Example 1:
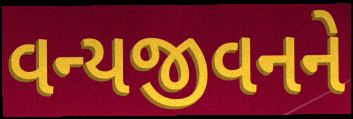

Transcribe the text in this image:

વન્યજીવનને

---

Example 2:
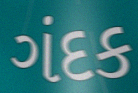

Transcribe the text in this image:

ગંદક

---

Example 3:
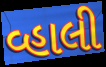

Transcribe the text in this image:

વ્હાલી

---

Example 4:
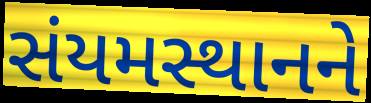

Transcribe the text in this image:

સંયમસ્થાનને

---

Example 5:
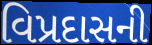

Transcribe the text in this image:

વિપ્રદાસની